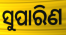
ସୁପାରିଣ